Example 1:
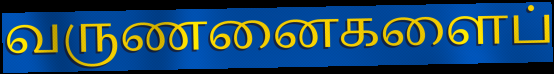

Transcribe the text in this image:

வருணனைகளைப்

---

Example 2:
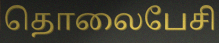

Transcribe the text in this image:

தொலைபேசி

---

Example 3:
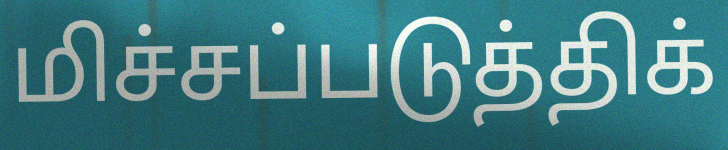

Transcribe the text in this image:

மிச்சப்படுத்திக்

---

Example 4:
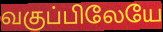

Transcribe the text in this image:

வகுப்பிலேயே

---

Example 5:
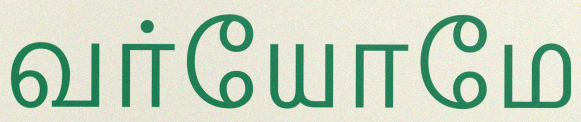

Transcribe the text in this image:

வர்யோமே